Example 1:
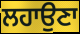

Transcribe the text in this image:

ਲਹਾਉਣਾ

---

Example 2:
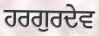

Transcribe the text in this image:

ਹਰਗੁਰਦੇਵ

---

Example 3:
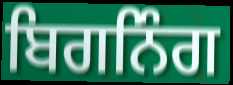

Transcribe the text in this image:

ਬਿਗਨਿੰਗ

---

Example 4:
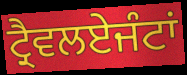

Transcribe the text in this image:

ਟ੍ਰੈਵਲਏਜੰਟਾਂ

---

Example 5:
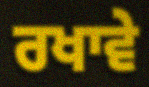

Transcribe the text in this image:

ਰਖਾਵੇ